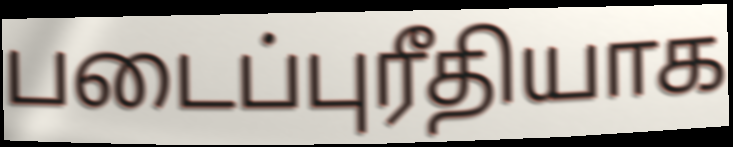
படைப்புரீதியாக